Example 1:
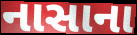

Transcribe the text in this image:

નાસાના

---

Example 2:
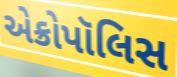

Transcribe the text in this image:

એક્રોપૉલિસ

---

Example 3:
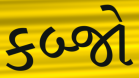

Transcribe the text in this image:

કબ્જો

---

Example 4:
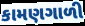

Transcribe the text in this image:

કામણગાળી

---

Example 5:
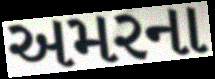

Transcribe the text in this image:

અમરના